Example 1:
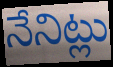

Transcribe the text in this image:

నేనిట్లు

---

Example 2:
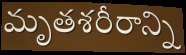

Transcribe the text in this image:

మృతశరీరాన్ని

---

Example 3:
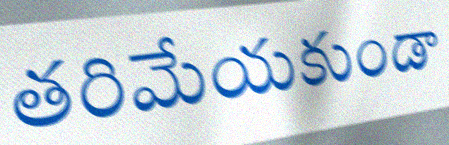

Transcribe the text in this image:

తరిమేయకుండా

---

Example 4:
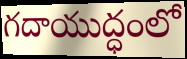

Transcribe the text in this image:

గదాయుద్ధంలో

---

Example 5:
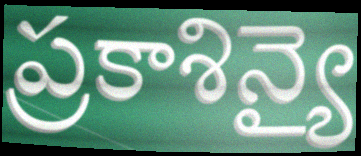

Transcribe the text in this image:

ప్రకాశిన్యై